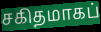
சகிதமாகப்